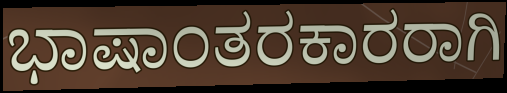
ಭಾಷಾಂತರಕಾರರಾಗಿ